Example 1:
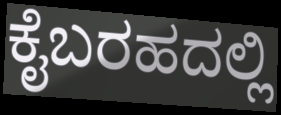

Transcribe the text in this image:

ಕೈಬರಹದಲ್ಲಿ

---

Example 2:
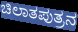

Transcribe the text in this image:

ಚಿಲಾತಪುತ್ರನ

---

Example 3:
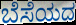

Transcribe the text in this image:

ಬೆಸೆಯದ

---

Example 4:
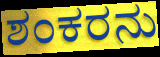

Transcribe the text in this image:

ಶಂಕರನು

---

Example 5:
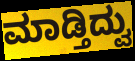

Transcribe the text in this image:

ಮಾಡ್ತಿದ್ವು